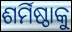
ଶର୍ମିଷ୍ଠାକୁ